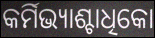
କର୍ମିଭ୍ୟାଶ୍ଚାଧିକୋ